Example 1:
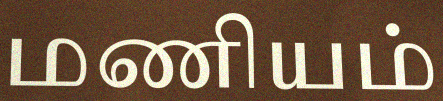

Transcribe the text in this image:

மணியம்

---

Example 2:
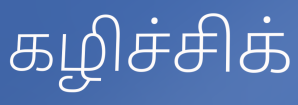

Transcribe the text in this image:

கழிச்சிக்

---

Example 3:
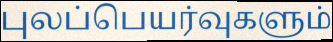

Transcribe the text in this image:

புலப்பெயர்வுகளும்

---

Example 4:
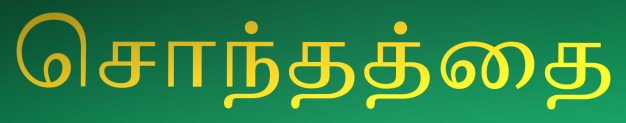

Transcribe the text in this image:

சொந்தத்தை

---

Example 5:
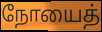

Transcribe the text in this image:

நோயைத்